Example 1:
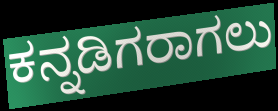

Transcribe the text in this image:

ಕನ್ನಡಿಗರಾಗಲು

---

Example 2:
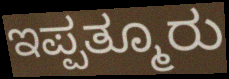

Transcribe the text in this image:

ಇಪ್ಪತ್ಮೂರು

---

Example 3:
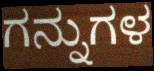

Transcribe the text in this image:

ಗನ್ನುಗಳ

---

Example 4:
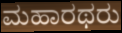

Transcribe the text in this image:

ಮಹಾರಥರು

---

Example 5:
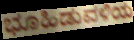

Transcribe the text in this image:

ಭೂಹಿಡುವಳಿಯ